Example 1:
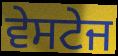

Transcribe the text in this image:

ਵੇਸਟੇਜ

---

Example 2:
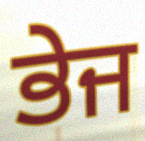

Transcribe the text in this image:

ਭੇਜ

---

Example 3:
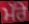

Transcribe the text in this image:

ਮੱਰੇ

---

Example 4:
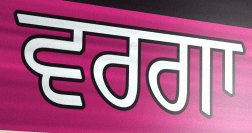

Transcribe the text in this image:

ਵਰਗਾ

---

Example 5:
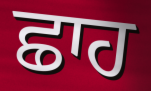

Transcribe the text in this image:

ਛਾਹ